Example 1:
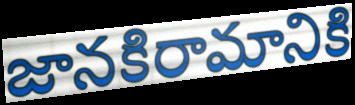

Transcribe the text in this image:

జానకిరామానికి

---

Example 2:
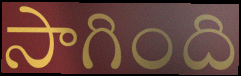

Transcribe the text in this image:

సాగింది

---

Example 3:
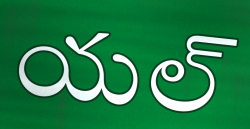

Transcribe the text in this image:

యల్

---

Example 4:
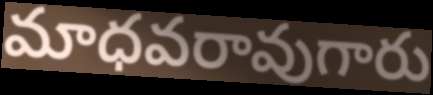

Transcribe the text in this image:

మాధవరావుగారు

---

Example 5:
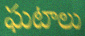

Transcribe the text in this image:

ఘటాలు